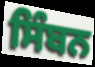
ਸਿੰਬਨ